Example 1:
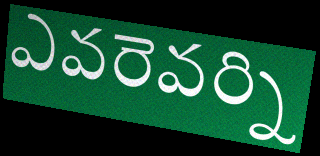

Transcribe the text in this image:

ఎవరెవర్ని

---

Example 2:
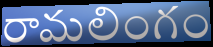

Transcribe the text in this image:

రామలింగం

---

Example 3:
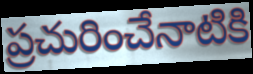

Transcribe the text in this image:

ప్రచురించేనాటికి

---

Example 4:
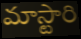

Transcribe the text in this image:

మాస్టారి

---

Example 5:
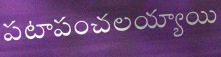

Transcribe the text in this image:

పటాపంచలయ్యాయి